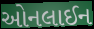
ઓનલાઈન